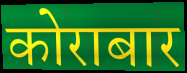
कोराबार